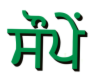
ਸੌਪੇਂ